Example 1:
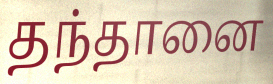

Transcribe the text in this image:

தந்தானை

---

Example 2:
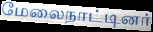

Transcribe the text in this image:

மேலைநாட்டினர்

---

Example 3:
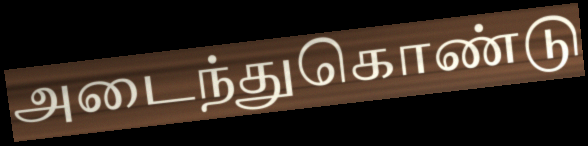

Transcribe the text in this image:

அடைந்துகொண்டு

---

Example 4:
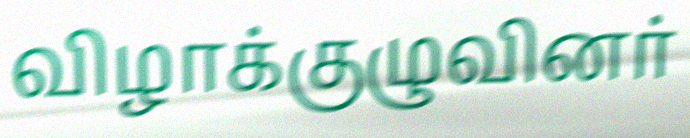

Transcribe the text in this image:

விழாக்குழுவினர்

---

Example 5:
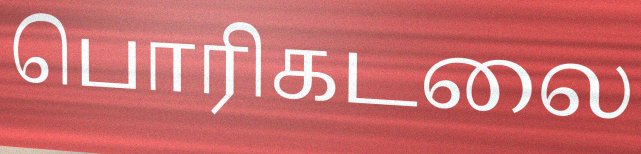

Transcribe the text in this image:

பொரிகடலை